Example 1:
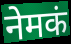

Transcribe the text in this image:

नेमकं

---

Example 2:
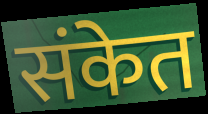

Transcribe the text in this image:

संकेत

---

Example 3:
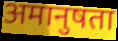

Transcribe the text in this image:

अमानुषता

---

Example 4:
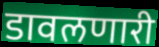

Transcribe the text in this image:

डावलणारी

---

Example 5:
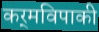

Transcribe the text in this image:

कर्मविपाकी